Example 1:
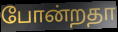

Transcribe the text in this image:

போன்றதா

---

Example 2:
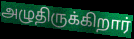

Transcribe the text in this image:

அழுதிருக்கிறார்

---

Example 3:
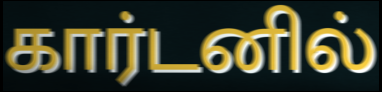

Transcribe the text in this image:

கார்டனில்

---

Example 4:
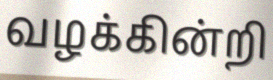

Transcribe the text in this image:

வழக்கின்றி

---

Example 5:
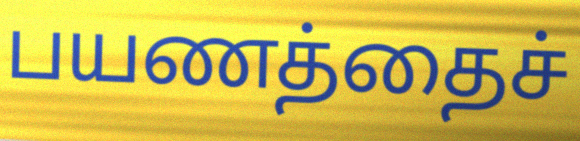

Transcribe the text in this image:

பயணத்தைச்